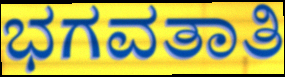
ಭಗವತಾತಿ